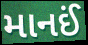
માનઈં